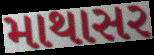
માથાસર